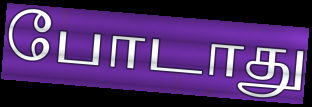
போடாது